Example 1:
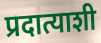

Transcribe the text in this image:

प्रदात्याशी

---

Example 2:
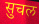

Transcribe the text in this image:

सुचल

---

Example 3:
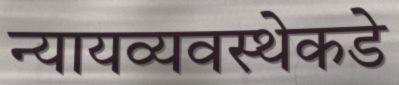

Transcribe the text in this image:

न्यायव्यवस्थेकडे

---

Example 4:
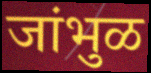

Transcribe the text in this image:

जांभुळ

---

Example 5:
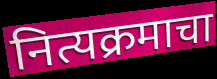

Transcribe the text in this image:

नित्यक्रमाचा